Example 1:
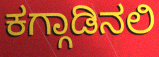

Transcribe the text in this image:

ಕಗ್ಗಾಡಿನಲಿ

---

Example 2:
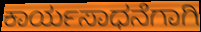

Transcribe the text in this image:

ಕಾರ್ಯಸಾಧನೆಗಾಗಿ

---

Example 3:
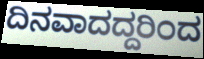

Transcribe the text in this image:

ದಿನವಾದದ್ದರಿಂದ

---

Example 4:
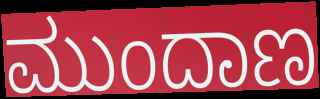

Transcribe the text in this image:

ಮುಂದಾಣ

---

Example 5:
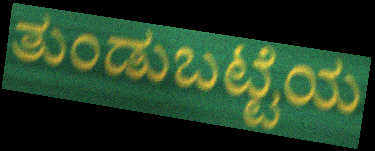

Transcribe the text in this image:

ತುಂಡುಬಟ್ಟೆಯ